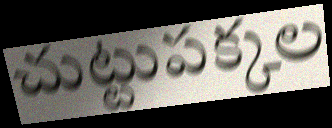
చుట్టుపక్కల